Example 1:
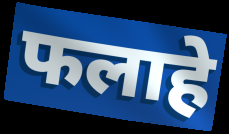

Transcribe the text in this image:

फलाहे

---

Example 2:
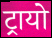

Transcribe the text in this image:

ट्रायो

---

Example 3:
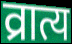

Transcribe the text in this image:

व्रात्य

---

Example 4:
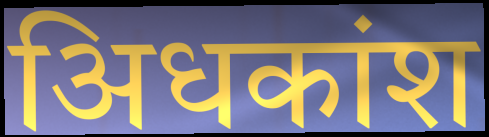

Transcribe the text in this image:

अिधकांश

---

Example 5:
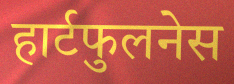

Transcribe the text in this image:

हार्टफुलनेस